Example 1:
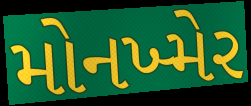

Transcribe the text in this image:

મોનખ્મેર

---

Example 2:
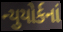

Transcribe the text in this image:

ન્યુયોર્કનાં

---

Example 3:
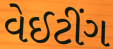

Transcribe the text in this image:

વેઈટીંગ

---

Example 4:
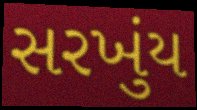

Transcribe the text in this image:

સરખુંય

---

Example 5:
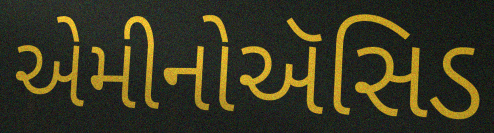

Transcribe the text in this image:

એમીનોઍસિડ